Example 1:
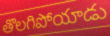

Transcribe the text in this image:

తొలగిపోయాడు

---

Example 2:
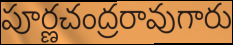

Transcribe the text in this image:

పూర్ణచంద్రరావుగారు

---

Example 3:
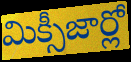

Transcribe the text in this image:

మిక్సీజార్లో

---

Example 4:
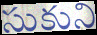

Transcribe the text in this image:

సుకుని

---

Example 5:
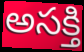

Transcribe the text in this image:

అసక్తి